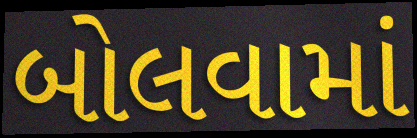
બોલવામાં